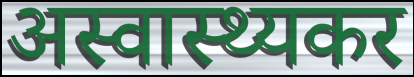
अस्वास्थ्यकर